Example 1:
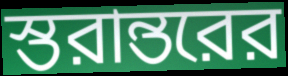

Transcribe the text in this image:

স্তরান্তরের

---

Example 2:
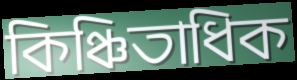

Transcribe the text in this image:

কিঞ্চিতাধিক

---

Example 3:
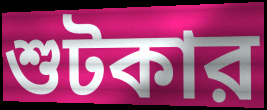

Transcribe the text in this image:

শুটকার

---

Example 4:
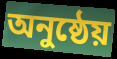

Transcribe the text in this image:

অনুষ্ঠেয়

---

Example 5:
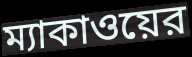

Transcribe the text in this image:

ম্যাকাওয়ের